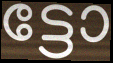
ട്ടോ